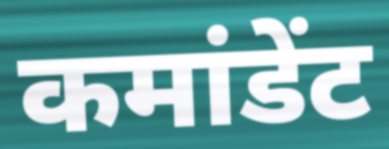
कमांडेंट